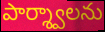
పార్శ్వాలను